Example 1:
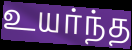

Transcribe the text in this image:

உயர்ந்த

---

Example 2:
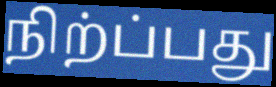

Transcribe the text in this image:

நிற்ப்பது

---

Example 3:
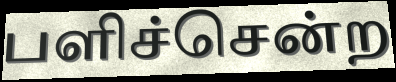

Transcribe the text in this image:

பளிச்சென்ற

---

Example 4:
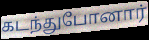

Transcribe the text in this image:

கடந்துபோனார்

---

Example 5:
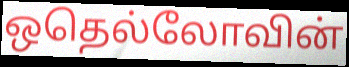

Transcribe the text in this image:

ஒதெல்லோவின்